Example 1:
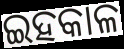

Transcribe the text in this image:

ଇହକାଳ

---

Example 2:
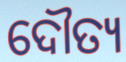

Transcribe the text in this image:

ଦୌତ୍ୟ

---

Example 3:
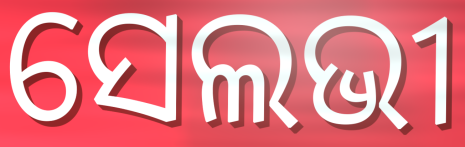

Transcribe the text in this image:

ସେଲଭୀ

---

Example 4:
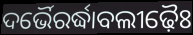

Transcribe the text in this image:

ଦର୍ଭୈରର୍ଦ୍ଧାବଲୀଢ଼ୈଃ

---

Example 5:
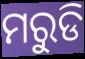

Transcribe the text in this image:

ମରୁଡି